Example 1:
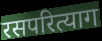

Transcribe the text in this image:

रसपरित्याग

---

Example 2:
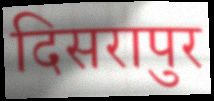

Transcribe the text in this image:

दिसरापुर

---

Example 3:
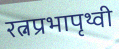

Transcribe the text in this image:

रत्नप्रभापृथ्वी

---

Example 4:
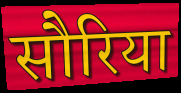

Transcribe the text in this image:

सौरिया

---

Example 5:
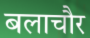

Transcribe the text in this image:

बलाचौर